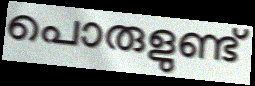
പൊരുളുണ്ട്